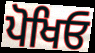
ਪੋਖਿਓ